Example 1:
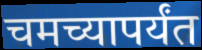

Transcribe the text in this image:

चमच्यापर्यंत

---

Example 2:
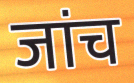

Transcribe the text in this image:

जांच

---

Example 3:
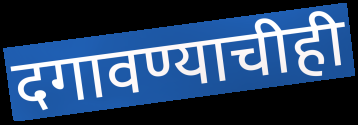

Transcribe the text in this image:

दगावण्याचीही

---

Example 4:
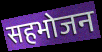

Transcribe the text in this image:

सहभोजन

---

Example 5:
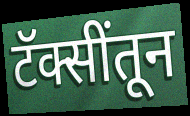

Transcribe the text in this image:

टॅक्सींतून